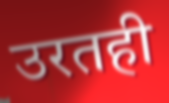
उरतही